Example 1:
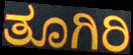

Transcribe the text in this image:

ತೂಗಿರಿ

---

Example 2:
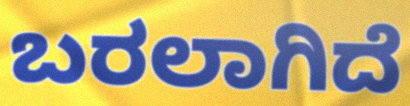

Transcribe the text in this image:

ಬರಲಾಗಿದೆ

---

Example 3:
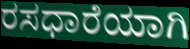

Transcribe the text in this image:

ರಸಧಾರೆಯಾಗಿ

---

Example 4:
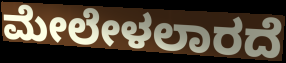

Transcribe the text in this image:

ಮೇಲೇಳಲಾರದೆ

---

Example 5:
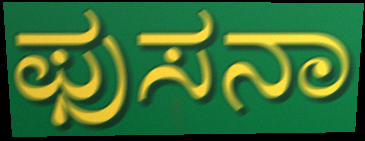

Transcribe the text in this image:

ಫುಸನಾ